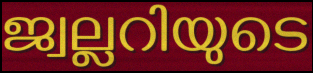
ജ്വല്ലറിയുടെ